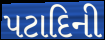
પટાદિની